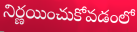
నిర్ణయించుకోవడంలో